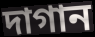
দাগান